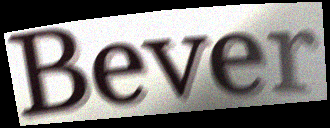
Bever